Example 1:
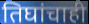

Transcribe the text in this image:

तिघांचाही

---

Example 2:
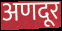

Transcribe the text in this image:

अणदूर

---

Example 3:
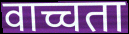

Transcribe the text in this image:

वाच्चता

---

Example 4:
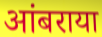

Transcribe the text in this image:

आंबराया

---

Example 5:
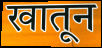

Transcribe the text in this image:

खातून